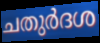
ചതുർദശ